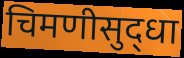
चिमणीसुद्धा